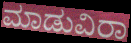
ಮಾಡುವಿರಾ